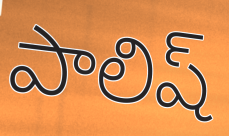
పాలిష్